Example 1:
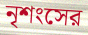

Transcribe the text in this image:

নৃশংসের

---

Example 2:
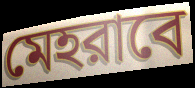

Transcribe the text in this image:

মেহরাবে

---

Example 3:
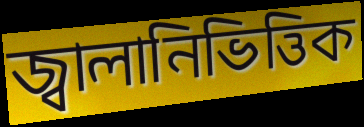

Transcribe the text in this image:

জ্বালানিভিত্তিক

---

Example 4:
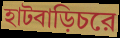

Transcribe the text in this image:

হাটবাড়িচরে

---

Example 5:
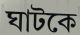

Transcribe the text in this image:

ঘাটকে